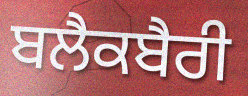
ਬਲੈਕਬੈਰੀ